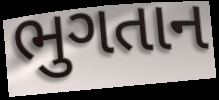
ભુગતાન